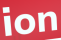
ion